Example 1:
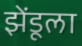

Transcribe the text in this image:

झेंडूला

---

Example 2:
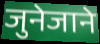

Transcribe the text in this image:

जुनेजाने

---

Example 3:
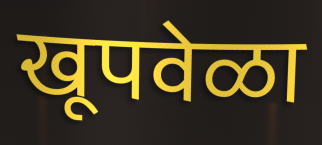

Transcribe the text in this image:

खूपवेळा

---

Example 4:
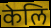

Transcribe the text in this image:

केलि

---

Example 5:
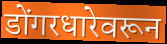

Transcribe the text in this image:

डोंगरधारेवरून